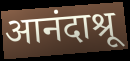
आनंदाश्रू